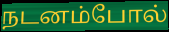
நடனம்போல்